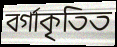
বৰ্গাকৃতিত